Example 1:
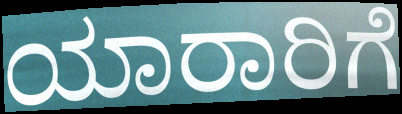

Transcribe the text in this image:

ಯಾರಾರಿಗೆ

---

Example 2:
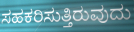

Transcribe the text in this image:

ಸಹಕರಿಸುತ್ತಿರುವುದು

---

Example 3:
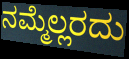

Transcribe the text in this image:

ನಮ್ಮೆಲ್ಲರದು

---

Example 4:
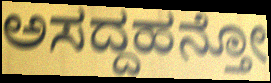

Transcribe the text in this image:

ಅಸದ್ದಹನ್ತೋ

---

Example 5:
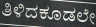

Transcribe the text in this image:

ತಿಳಿದಕೂಡಲೇ